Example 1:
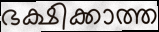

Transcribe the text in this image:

ഭക്ഷിക്കാത്ത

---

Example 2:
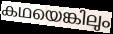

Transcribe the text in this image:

കഥയെങ്കിലും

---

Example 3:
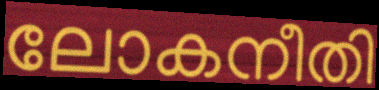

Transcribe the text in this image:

ലോകനീതി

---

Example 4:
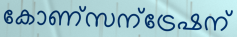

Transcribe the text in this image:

കോണ്സന്ട്രേഷന്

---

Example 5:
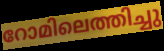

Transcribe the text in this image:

റോമിലെത്തിച്ചു